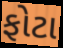
ફોટા